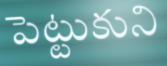
పెట్టుకుని